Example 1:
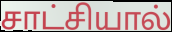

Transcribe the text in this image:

சாட்சியால்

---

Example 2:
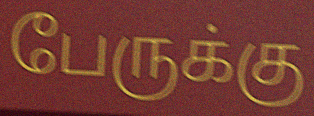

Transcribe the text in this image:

பேருக்கு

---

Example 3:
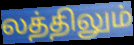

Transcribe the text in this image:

லத்திலும்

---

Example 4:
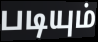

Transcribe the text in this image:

படியும்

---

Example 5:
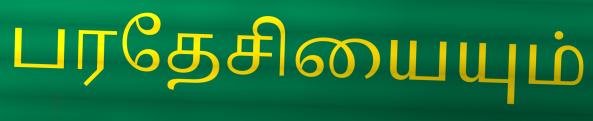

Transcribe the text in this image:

பரதேசியையும்